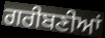
ਗਰੀਬਣੀਆਂ